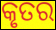
କୃତର